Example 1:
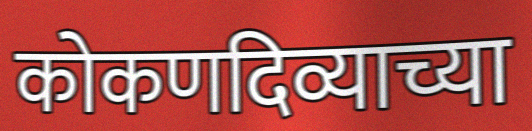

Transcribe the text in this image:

कोकणदिव्याच्या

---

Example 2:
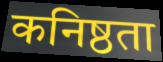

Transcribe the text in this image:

कनिष्ठता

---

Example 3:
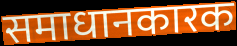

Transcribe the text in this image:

समाधानकारक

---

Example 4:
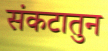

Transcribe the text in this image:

संकटातुन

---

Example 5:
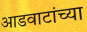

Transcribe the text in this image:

आडवाटांच्या